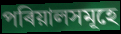
পৰিয়ালসমূহে